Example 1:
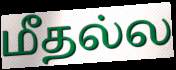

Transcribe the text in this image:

மீதல்ல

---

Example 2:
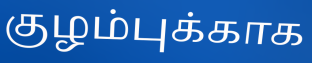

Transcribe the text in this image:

குழம்புக்காக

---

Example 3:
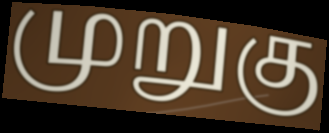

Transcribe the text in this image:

முறுகு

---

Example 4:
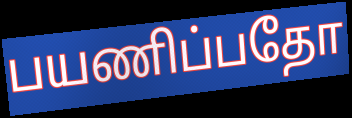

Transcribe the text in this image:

பயணிப்பதோ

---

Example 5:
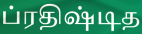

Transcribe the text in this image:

ப்ரதிஷ்டித